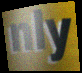
nly